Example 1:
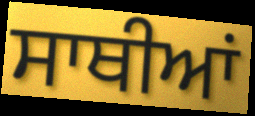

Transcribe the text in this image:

ਸਾਥੀਆਂ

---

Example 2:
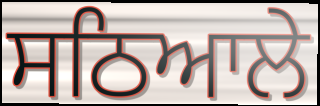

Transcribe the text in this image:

ਸਠਿਆਲੇ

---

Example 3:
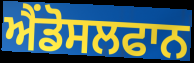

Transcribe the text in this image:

ਐਂਡੋਸਲਫਾਨ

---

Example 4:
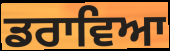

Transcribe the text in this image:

ਡਰਾਵਿਆ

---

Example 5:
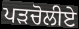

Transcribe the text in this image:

ਪੜਚੋਲੀਏ